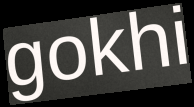
gokhi